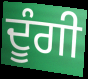
ਦੂੰਗੀ